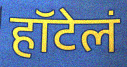
हॉटेलं